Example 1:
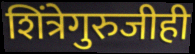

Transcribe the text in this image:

शिंत्रेगुरुजीही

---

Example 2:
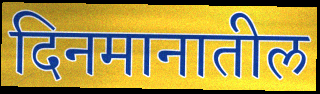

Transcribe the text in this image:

दिनमानातील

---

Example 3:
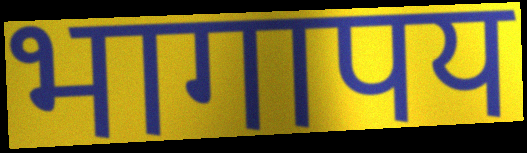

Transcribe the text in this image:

भागापय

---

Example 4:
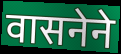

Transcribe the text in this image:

वासनेने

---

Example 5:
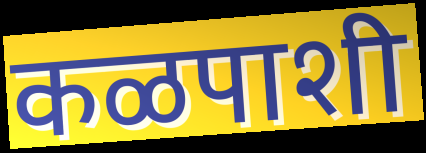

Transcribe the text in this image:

कळपाशी